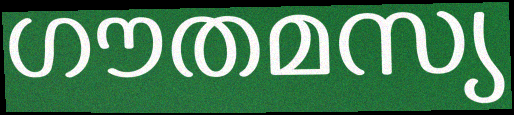
ഗൗതമസ്യ